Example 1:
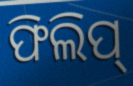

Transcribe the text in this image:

ଫିଲିପ୍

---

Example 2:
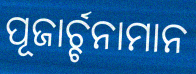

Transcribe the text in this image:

ପୂଜାର୍ଚ୍ଚନାମାନ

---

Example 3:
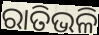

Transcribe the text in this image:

ରାତିଭଳି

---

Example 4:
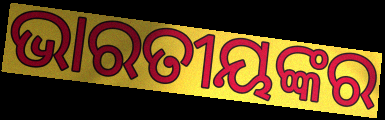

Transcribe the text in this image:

ଭାରତୀୟଙ୍କର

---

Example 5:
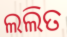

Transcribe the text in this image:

ଲଲିତ